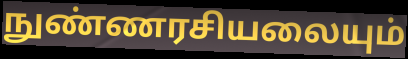
நுண்ணரசியலையும்